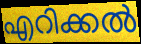
എറിക്കൽ